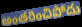
అంతరించిపోదు